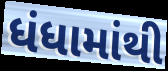
ધંધામાંથી